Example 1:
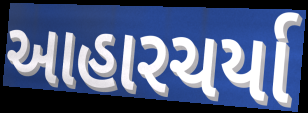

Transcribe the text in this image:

આહારચર્યા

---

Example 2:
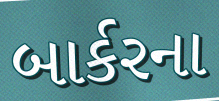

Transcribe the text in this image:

બાર્કરના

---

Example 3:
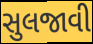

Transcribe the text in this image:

સુલજાવી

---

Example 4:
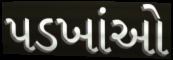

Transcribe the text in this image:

પડખાંઓ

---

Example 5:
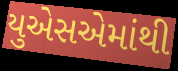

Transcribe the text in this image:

યુએસએમાંથી